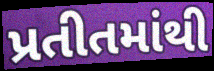
પ્રતીતમાંથી